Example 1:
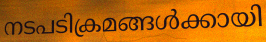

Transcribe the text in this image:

നടപടിക്രമങ്ങൾക്കായി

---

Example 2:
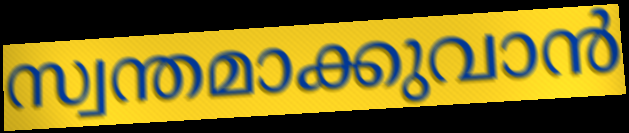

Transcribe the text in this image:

സ്വന്തമാക്കുവാൻ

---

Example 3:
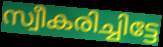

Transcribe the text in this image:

സ്വീകരിച്ചിട്ടേ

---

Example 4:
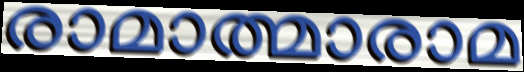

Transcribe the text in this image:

രാമാത്മാരാമ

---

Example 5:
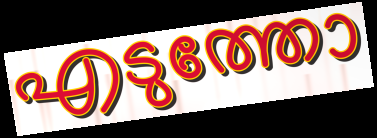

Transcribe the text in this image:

എടുത്തോ